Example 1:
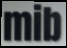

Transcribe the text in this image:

mib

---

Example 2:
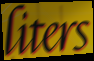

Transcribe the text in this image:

liters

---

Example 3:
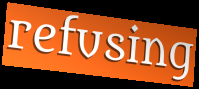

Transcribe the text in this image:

refusing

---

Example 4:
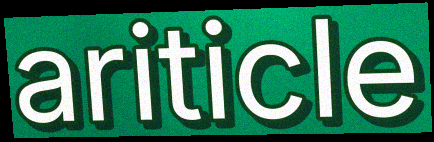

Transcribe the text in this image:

ariticle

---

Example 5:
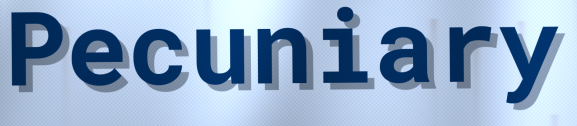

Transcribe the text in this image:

Pecuniary